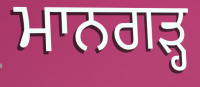
ਮਾਨਗੜ੍ਹ